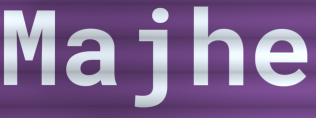
Majhe